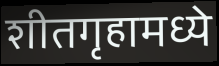
शीतगृहामध्ये